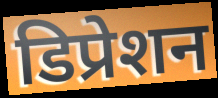
डिप्रेशन